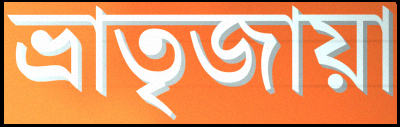
ভ্রাতৃজায়া